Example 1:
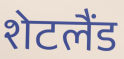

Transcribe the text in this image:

शेटलैंड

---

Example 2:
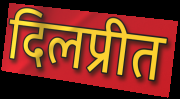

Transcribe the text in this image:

दिलप्रीत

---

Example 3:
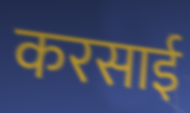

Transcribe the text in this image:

करसाई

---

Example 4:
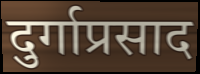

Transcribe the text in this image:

दुर्गाप्रसाद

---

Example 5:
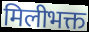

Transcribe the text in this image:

मिलीभक्त